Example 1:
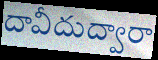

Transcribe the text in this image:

దావీదుద్వారా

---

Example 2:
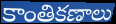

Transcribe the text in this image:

కాంతికణాలు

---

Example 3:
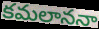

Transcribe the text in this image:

కమలాననా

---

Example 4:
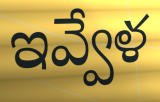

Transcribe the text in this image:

ఇవ్వేళ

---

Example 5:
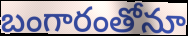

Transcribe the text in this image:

బంగారంతోనూ